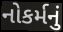
નોકર્મનું